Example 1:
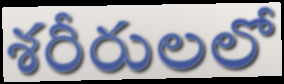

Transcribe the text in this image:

శరీరులలో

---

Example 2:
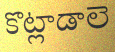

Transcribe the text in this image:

కొట్లాడాలె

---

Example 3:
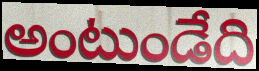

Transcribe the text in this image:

అంటుండేది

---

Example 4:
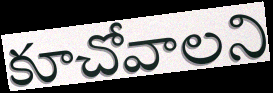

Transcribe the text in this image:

కూచోవాలని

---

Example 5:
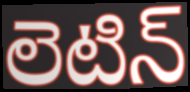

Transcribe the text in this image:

లెటిన్